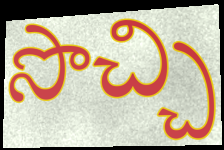
సొచ్చి